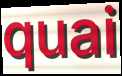
quai